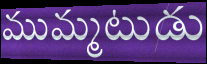
ముమ్మటుడు